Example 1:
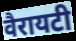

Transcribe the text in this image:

वैरायटी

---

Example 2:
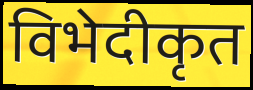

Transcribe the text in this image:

विभेदीकृत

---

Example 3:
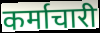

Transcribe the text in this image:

कर्माचारी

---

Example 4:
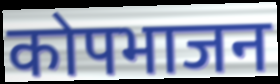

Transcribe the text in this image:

कोपभाजन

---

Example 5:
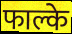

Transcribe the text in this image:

फाल्के